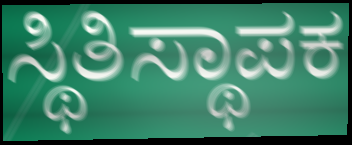
ಸ್ಥಿತಿಸ್ಥಾಪಕ